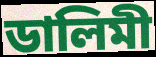
ডালিমী